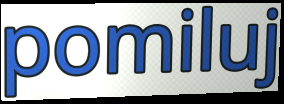
pomiluj